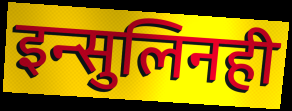
इन्सुलिनही